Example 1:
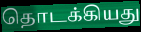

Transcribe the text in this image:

தொடக்கியது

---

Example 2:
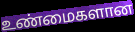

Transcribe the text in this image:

உண்மைகளான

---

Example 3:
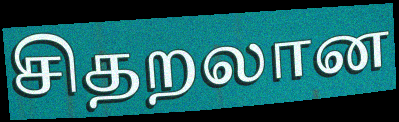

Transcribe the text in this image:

சிதறலான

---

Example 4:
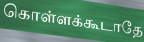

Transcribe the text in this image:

கொள்ளக்கூடாதே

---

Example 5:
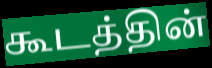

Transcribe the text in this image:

கூடத்தின்